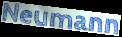
Neumann